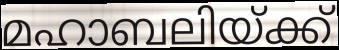
മഹാബലിയ്ക്ക്